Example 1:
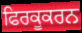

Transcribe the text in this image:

ਫਿਰਕੂਕਰਨ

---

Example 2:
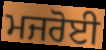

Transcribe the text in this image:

ਮਜਰੋਈ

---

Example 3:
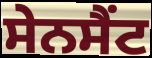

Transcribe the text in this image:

ਸੇਨਸੈਂਟ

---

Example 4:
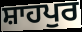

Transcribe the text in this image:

ਸ਼ਾਹਪੁਰ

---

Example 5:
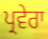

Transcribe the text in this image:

ਪ੍ਰਵੇਰਾ